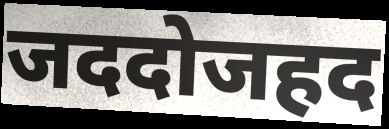
जददोजहद